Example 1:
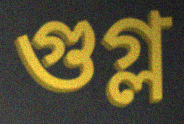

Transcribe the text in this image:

গুগ্ল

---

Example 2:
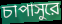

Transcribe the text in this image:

চাপাসুরে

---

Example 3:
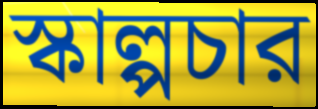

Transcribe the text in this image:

স্কাল্পচার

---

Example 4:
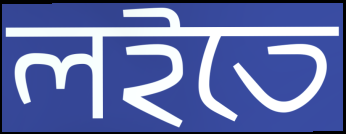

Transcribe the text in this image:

লইতে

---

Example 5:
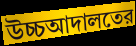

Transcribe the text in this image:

উচ্চআদালতের